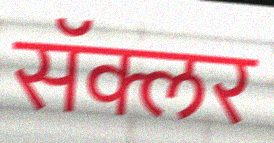
सॅक्लर